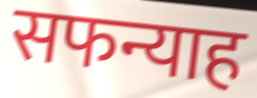
सफन्याह